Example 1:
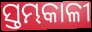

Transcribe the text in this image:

ସ୍ତମ୍ଭକାଳୀ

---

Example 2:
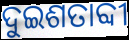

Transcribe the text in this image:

ଦୁଇଶତାବ୍ଦୀ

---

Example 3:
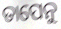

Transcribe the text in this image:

ତାପେନୁ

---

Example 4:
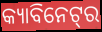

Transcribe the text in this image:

କ୍ୟାବିନେଟ୍‌ର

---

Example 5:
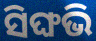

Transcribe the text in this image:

ସିଙ୍ଘଭି